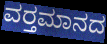
ವರ‍್ತಮಾನದ